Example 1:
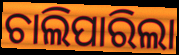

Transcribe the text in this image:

ଚାଲିପାରିଲା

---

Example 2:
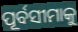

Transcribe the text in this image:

ପୂର୍ବସୀମାକୁ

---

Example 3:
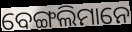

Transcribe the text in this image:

ବେଙ୍ଗଲିମାନେ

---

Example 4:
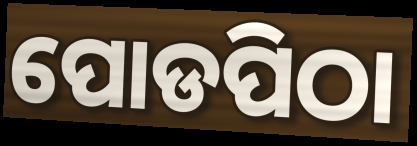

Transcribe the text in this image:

ପୋଡପିଠା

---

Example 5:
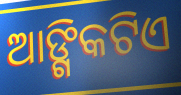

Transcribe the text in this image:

ଆଙ୍ଗିକଟିଏ